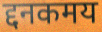
द्दनकमय